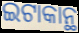
ଇଟାକାନ୍ଥ